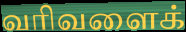
வரிவளைக்